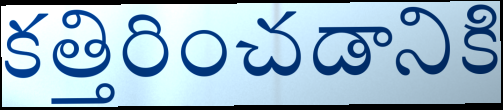
కత్తిరించడానికి